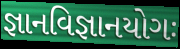
જ્ઞાનવિજ્ઞાનયોગઃ